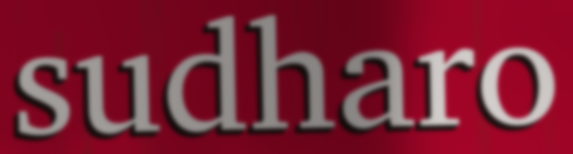
sudharo